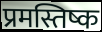
प्रमस्तिष्क